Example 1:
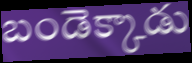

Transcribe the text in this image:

బండెక్కాడు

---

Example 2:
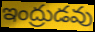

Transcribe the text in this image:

ఇంద్రుడవు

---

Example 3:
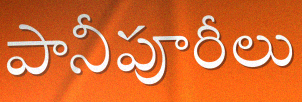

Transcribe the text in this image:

పానీపూరీలు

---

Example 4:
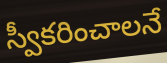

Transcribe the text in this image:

స్వీకరించాలనే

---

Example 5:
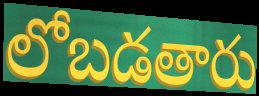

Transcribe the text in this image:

లోబడతారు